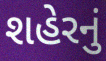
શહેરનું